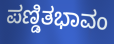
ಪಣ್ಡಿತಭಾವಂ